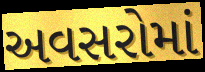
અવસરોમાં